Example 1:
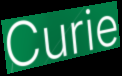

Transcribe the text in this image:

Curie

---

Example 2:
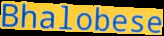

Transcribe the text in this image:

Bhalobese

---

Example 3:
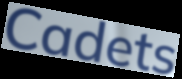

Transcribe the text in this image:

Cadets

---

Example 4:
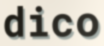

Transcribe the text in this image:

dico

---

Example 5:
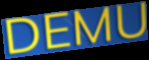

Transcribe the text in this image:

DEMU